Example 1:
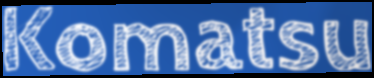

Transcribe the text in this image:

Komatsu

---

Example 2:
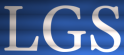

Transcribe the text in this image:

LGS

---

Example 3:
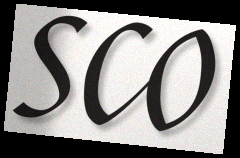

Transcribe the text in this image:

sco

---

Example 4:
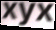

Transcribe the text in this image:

xyx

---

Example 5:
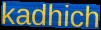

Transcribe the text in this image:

kadhich